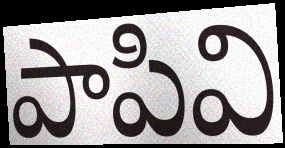
పాపివి